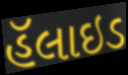
હૅલાઇડ